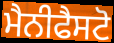
ਮੈਨੀਫੈਸਟੋ